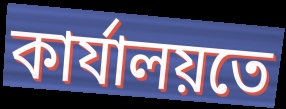
কাৰ্যালয়তে